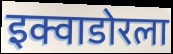
इक्वाडोरला